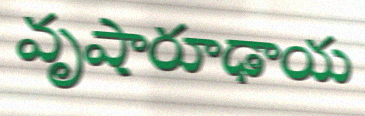
వృషారూఢాయ